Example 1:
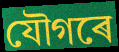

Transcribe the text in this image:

যৌগৰে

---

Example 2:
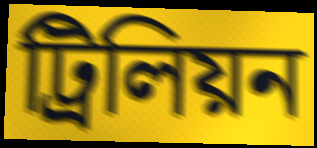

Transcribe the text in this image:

ট্ৰিলিয়ন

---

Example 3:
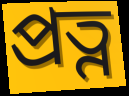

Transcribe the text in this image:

প্ৰত্ন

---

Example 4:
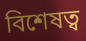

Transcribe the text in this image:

বিশেষত্ব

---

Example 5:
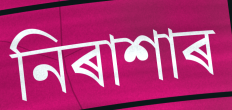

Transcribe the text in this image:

নিৰাশাৰ